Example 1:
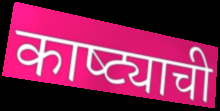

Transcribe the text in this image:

काष्ट्याची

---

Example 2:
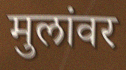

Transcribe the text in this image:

मुलांवर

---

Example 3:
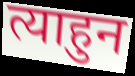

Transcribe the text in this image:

त्याहुन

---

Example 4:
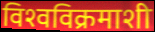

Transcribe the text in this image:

विश्वविक्रमाशी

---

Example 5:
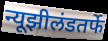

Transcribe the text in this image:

न्यूझीलंडतर्फे